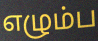
எழும்ப